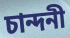
চান্দনী